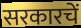
सरकारचें